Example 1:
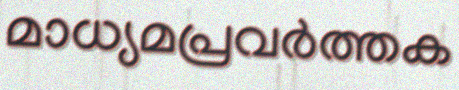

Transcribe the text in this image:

മാധ്യമപ്രവർത്തക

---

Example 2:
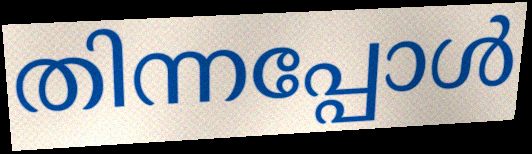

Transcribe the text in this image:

തിന്നപ്പോൾ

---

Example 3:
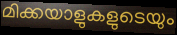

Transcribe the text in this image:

മിക്കയാളുകളുടെയും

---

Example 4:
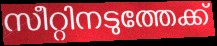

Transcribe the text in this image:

സീറ്റിനടുത്തേക്ക്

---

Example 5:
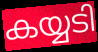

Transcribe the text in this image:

കയ്യടി